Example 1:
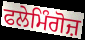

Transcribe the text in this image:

ਫਲੇਮਿੰਗੋਜ਼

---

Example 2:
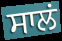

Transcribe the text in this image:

ਸਾਲਂ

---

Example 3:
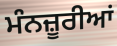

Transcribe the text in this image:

ਮੰਨਜ਼ੂਰੀਆਂ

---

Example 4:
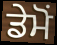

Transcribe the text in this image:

ਡੇਮੋਂ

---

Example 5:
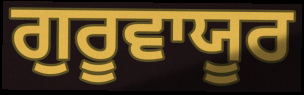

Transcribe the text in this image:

ਗੁਰੂਵਾਯੂਰ